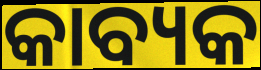
କାବ୍ୟକ